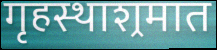
गृहस्थाश्रमात